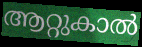
ആറ്റുകാൽ